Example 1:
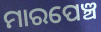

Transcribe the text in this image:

ମାରପେଞ୍ଚ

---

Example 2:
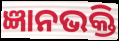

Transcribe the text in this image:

ଜ୍ଞାନଭକ୍ତି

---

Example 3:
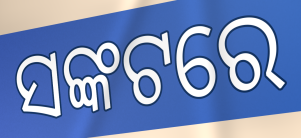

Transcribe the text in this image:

ସଙ୍କଟରେ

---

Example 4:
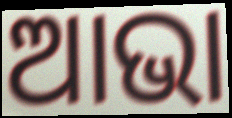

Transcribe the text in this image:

ଆଭା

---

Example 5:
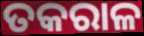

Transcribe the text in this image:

ତକରାଳ